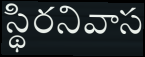
స్థిరనివాస